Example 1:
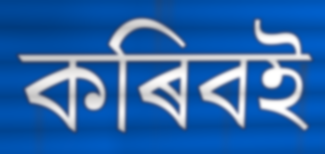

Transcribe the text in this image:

কৰিবই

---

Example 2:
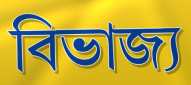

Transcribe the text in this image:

বিভাজ্য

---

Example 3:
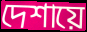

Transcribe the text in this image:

দেশায়ে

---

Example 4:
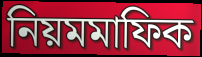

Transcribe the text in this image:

নিয়মমাফিক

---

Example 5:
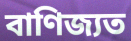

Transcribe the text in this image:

বাণিজ্যত